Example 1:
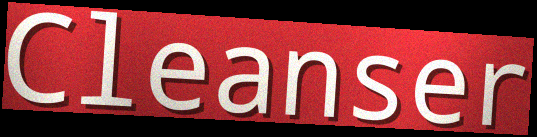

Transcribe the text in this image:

Cleanser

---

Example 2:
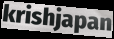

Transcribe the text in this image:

krishjapan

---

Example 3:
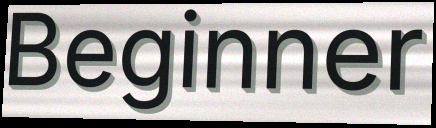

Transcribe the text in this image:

Beginner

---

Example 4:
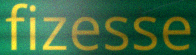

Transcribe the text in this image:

fizesse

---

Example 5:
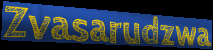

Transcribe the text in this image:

Zvasarudzwa